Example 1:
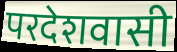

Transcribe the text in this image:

परदेशवासी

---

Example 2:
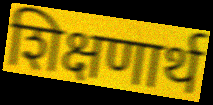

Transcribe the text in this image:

शिक्षणार्थ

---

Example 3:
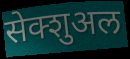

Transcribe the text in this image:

सेक्शुअल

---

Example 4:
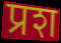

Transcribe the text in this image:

प्रश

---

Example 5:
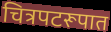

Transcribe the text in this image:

चित्रपटरूपात